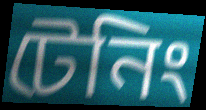
টেনিং